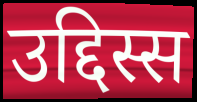
उद्दिस्स